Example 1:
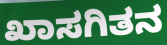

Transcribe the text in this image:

ಖಾಸಗಿತನ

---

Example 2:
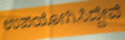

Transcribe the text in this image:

ಉಪಯೋಗಿಸಿದ್ದೇವೆ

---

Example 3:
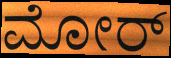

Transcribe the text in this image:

ಮೋರ್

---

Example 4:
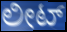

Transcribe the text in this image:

ಲೀಟ್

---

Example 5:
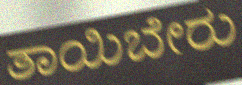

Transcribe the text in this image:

ತಾಯಿಬೇರು